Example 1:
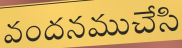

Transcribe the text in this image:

వందనముచేసి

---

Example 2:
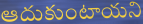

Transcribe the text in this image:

ఆదుకుంటాయని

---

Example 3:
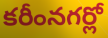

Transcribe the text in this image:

కరీంనగర్లో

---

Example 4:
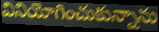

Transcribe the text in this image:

వినియోగించుకున్నాను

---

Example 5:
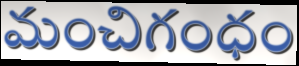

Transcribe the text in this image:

మంచిగంధం